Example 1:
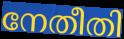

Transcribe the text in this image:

നേതീതി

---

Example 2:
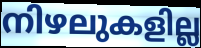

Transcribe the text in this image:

നിഴലുകളില്ല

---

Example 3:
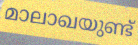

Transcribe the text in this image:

മാലാഖയുണ്ട്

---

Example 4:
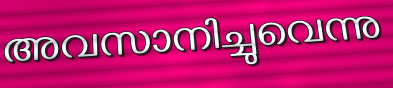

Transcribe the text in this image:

അവസാനിച്ചുവെന്നു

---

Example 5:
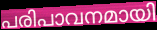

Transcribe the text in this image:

പരിപാവനമായി